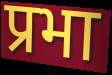
प्रभा